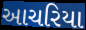
આચરિયા